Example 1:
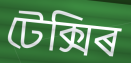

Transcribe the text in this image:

টেক্সিৰ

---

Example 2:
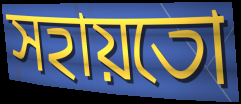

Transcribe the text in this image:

সহায়তো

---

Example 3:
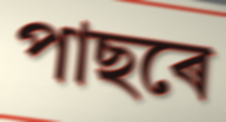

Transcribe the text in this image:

পাছৰে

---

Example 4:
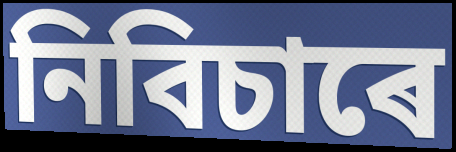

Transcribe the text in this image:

নিবিচাৰে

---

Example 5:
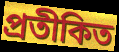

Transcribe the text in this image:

প্ৰতীকিত